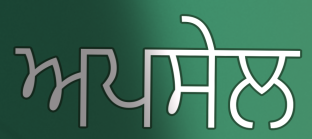
ਅਪਸੇਲ